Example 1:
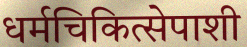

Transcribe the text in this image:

धर्मचिकित्सेपाशी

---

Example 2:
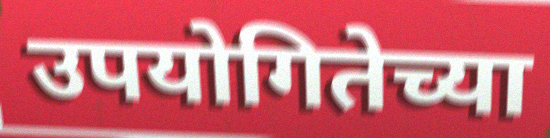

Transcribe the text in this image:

उपयोगितेच्या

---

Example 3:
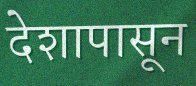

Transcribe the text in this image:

देशापासून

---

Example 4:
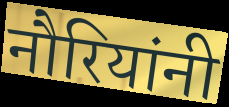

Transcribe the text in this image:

नौरियांनी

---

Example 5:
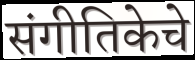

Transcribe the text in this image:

संगीतिकेचे